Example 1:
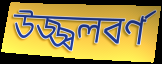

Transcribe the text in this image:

উজ্জ্বলবর্ণ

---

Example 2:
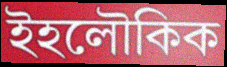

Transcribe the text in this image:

ইহলৌকিক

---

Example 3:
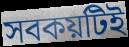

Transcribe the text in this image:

সবকয়টিই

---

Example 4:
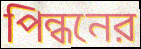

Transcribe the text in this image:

পিন্ধনের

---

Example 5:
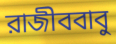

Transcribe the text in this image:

রাজীববাবু